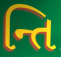
ન્તિ